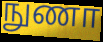
நுணா